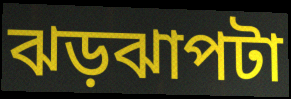
ঝড়ঝাপটা